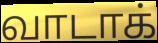
வாடாக்